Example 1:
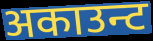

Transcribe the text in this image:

अकाउन्ट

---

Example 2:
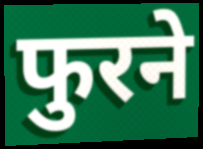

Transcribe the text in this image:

फुरने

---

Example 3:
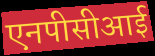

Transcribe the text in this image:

एनपीसीआई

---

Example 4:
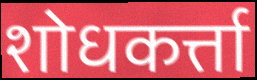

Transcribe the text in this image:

शोधकर्त्ता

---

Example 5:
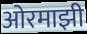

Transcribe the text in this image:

ओरमाझी